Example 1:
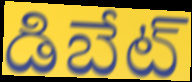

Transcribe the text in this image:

డిబేట్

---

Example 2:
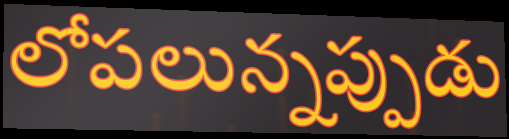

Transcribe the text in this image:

లోపలున్నప్పుడు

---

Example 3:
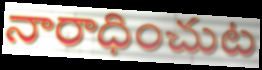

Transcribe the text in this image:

నారాధించుట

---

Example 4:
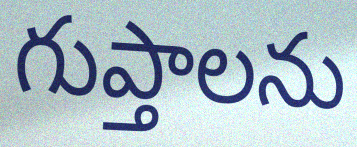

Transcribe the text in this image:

గుప్తాలను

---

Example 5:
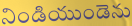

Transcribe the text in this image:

నిండియుండెను